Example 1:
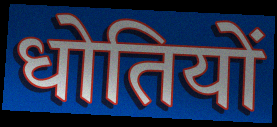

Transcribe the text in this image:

धोतियों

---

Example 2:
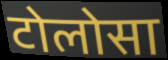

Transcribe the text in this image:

टोलोसा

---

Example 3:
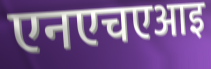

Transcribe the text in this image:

एनएचएआइ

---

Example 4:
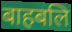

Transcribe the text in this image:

बाहबलि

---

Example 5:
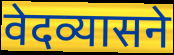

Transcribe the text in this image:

वेदव्यासने